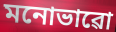
মনোভাৱো